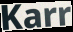
Karr